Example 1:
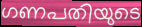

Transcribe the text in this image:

ഗണപതിയുടെ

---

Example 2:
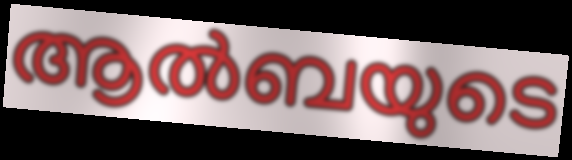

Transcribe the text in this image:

ആൽബയുടെ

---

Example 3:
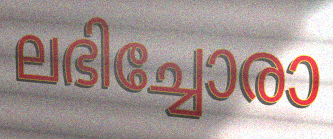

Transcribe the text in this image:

ലഭിച്ചോരാ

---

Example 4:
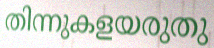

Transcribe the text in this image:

തിന്നുകളയരുതു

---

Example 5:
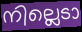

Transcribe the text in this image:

നില്ലെടാ